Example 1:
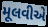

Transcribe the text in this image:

મૂલવીએ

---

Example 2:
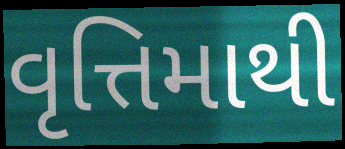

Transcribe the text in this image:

વૃત્તિમાથી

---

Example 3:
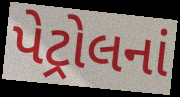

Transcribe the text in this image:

પેટ્રોલનાં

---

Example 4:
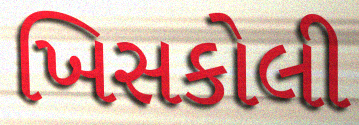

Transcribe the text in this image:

ખિસકોલી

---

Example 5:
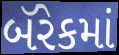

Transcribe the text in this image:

બૅરેકમાં